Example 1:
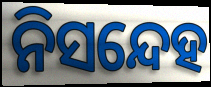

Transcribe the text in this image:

ନିସନ୍ଦେହ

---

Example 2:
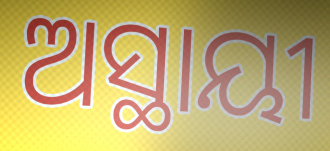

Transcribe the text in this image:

ଅସ୍ଥାୟୀ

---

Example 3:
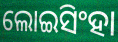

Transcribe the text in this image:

ଲୋଇସିଂହା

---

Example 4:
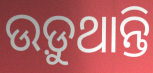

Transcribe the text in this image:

ଉଡ଼ୁଥାନ୍ତି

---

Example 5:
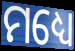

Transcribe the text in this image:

ମଧ୍ୟେ